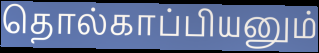
தொல்காப்பியனும்